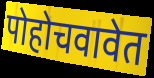
पोहोचवावेत